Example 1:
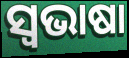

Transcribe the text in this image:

ସ୍ୱଭାଷା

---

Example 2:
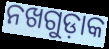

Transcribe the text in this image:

ନଖଗୁଡ଼ାକ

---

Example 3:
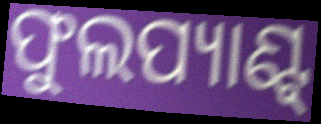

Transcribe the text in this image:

ଫୁଲପ୍ୟାଣ୍ଟ୍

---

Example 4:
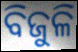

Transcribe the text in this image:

ବିଜୁଳି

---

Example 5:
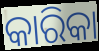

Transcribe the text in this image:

କାରିକା